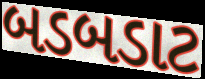
બડબડાટ